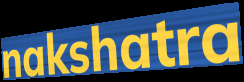
nakshatra